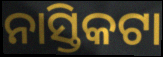
ନାସ୍ତିକଟା